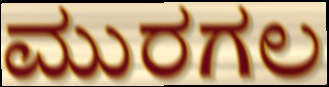
ಮುರಗಲ